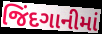
જિંદગાનીમાં